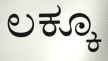
ಲಕ್ಕೂ